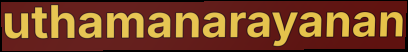
uthamanarayanan